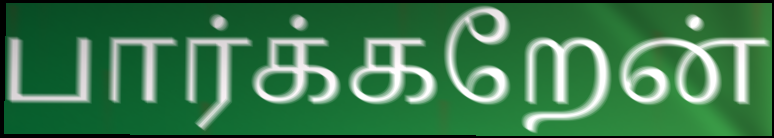
பார்க்கறேன்